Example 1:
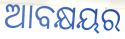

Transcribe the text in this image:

ଆବକ୍ଷୟର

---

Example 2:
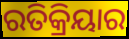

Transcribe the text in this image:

ରତିକ୍ରିୟାର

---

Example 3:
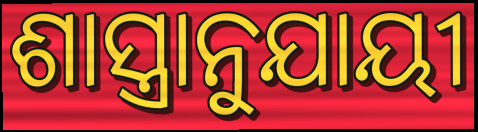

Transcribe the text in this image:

ଶାସ୍ତ୍ରାନୁଯାୟୀ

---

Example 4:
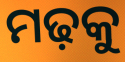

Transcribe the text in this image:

ମଢ଼କୁ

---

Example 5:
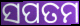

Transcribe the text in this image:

ସପତମ